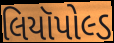
લિયૉપોલ્ડ